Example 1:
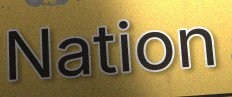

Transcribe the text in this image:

Nation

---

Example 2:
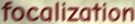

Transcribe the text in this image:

focalization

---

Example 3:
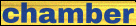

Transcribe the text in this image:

chamber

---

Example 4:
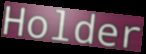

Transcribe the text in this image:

Holder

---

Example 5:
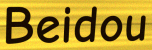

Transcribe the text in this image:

Beidou